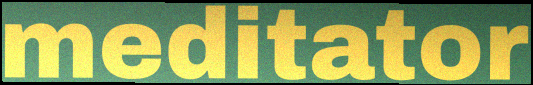
meditator